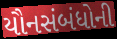
યૌનસંબંધોની